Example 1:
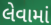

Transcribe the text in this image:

લેવામાં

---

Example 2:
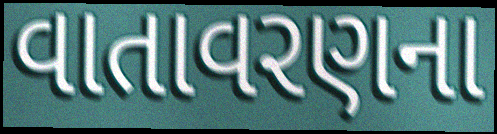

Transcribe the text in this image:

વાતાવરણના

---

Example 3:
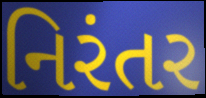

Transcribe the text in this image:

નિરંતર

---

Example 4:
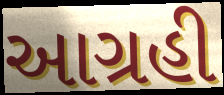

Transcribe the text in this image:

આગ્રહી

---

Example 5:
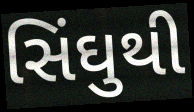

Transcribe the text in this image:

સિંઘુથી